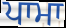
ਪਾਮਾ